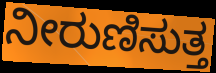
ನೀರುಣಿಸುತ್ತ